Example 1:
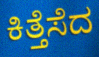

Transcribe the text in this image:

ಕಿತ್ತೆಸೆದ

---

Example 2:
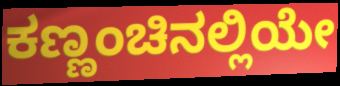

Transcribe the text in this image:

ಕಣ್ಣಂಚಿನಲ್ಲಿಯೇ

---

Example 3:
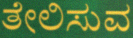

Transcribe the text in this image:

ತೇಲಿಸುವ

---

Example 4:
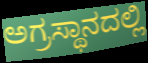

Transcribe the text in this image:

ಅಗ್ರಸ್ಥಾನದಲ್ಲಿ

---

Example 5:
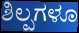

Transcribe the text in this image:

ಶಿಲ್ಪಗಳೂ